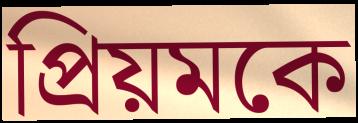
প্রিয়মকে